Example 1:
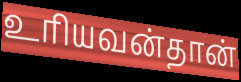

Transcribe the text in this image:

உரியவன்தான்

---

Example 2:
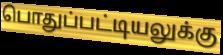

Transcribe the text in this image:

பொதுப்பட்டியலுக்கு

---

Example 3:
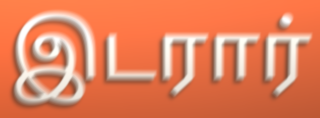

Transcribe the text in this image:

இடரார்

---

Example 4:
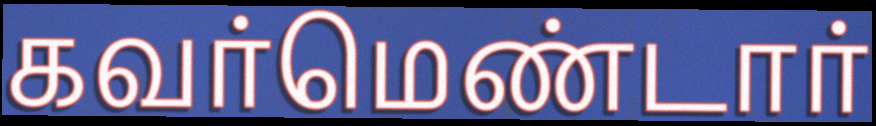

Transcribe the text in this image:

கவர்மெண்டார்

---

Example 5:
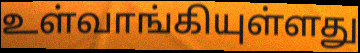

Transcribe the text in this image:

உள்வாங்கியுள்ளது